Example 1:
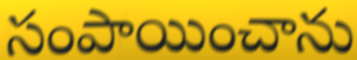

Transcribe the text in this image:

సంపాయించాను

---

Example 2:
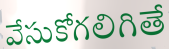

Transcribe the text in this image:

వేసుకోగలిగితే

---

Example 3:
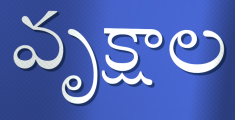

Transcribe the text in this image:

వృక్షాల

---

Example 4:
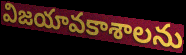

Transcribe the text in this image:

విజయావకాశాలను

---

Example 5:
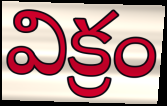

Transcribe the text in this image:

విక్రం